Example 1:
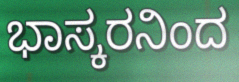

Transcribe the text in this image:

ಭಾಸ್ಕರನಿಂದ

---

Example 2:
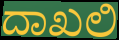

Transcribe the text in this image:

ದಾಖಲಿ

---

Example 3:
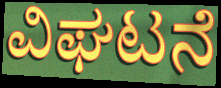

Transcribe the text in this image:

ವಿಘಟನೆ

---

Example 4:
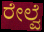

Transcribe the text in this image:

ರೇಲ್ವೆ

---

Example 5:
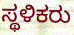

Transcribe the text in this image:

ಸ್ಥಳಿಕರು